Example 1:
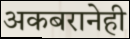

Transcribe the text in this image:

अकबरानेही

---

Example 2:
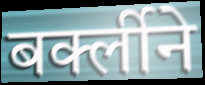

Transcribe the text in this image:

बर्क्लीने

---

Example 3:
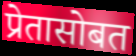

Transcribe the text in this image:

प्रेतासोबत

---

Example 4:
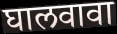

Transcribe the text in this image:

घालवावा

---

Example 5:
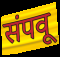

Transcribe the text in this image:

संपवू